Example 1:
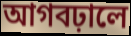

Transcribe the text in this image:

আগবঢ়ালে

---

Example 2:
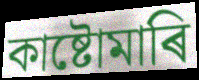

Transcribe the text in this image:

কাষ্টোমাৰি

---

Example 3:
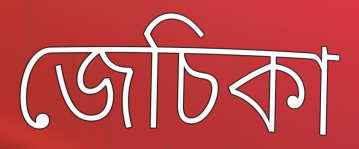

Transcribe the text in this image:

জেচিকা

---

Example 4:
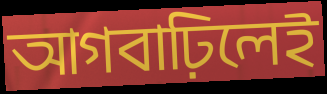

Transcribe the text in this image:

আগবাঢ়িলেই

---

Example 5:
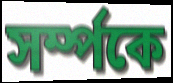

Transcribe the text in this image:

সৰ্ম্পকে